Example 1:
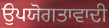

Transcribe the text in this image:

ਉਪਯੋਗਤਾਵਾਦੀ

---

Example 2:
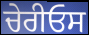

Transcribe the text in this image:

ਚੇਰੀਓਸ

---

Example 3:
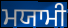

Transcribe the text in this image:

ਮਯਾਮੀ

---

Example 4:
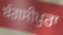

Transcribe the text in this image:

ਬੰਗਸੀਪੁਰਾ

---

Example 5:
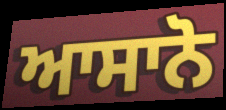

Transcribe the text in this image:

ਆਸਾਨੋ